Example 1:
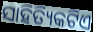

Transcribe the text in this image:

ସାହିତ୍ୟିକଟିଏ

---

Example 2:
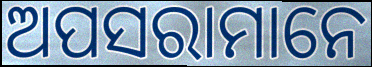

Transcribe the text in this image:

ଅପସରାମାନେ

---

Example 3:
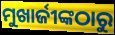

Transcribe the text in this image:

ମୁଖାର୍ଜୀଙ୍କଠାରୁ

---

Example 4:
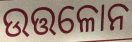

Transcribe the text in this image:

ଉତ୍ତଳୋନ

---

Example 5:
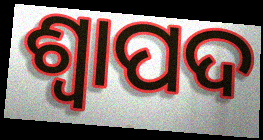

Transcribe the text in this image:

ଶ୍ୱାପଦ